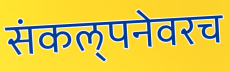
संकल्पनेवरच